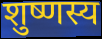
शुष्णस्य